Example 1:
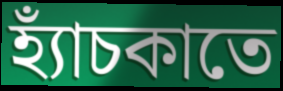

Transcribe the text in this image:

হ্যাঁচকাতে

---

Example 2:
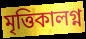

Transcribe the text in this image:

মৃত্তিকালগ্ন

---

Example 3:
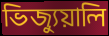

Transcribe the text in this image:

ভিজ্যুয়ালি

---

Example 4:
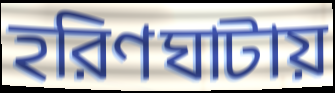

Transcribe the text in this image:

হরিণঘাটায়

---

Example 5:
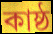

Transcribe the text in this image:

কাষ্ঠ